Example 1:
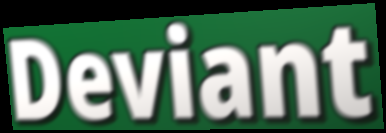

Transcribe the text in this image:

Deviant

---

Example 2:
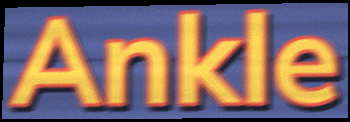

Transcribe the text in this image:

Ankle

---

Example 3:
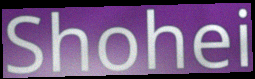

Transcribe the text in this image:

Shohei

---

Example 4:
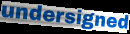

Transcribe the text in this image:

undersigned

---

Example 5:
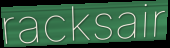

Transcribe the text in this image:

racksair